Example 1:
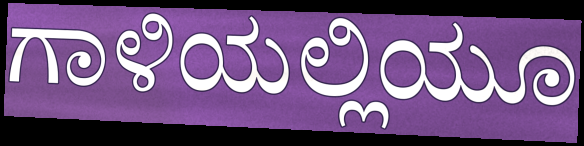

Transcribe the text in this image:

ಗಾಳಿಯಲ್ಲಿಯೂ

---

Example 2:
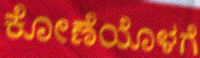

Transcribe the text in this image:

ಕೋಣೆಯೊಳಗೆ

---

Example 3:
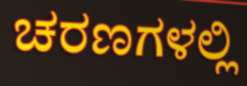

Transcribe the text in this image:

ಚರಣಗಳಲ್ಲಿ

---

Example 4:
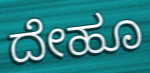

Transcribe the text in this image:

ದೇಹೂ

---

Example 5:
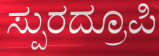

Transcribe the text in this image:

ಸ್ಪುರದ್ರೂಪಿ